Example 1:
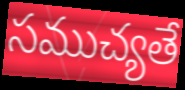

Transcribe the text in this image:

సముచ్యతే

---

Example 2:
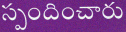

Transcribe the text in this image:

స్పందించారు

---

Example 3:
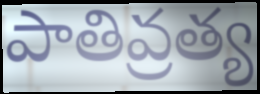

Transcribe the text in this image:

పాతివ్రత్య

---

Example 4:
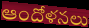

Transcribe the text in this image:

ఆందోళనలు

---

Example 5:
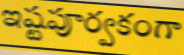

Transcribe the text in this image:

ఇష్టపూర్వకంగా